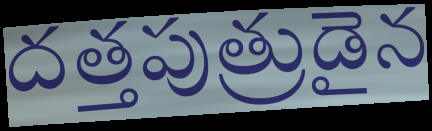
దత్తపుత్రుడైన